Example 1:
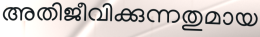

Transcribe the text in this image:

അതിജീവിക്കുന്നതുമായ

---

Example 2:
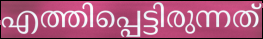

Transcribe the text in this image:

എത്തിപ്പെട്ടിരുന്നത്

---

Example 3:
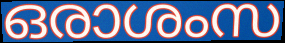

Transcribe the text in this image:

ഒരാശംസ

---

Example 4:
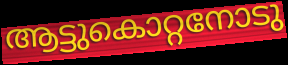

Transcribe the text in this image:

ആട്ടുകൊറ്റനോടു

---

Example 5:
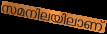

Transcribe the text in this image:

സമനിലയിലാണ്